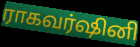
ராகவர்ஷினி